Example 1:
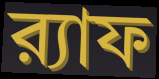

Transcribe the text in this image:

র‍্যাফ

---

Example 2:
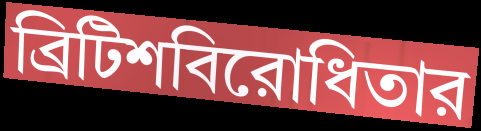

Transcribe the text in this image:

ব্রিটিশবিরোধিতার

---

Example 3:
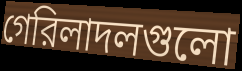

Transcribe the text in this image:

গেরিলাদলগুলো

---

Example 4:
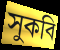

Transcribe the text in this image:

সুকবি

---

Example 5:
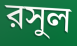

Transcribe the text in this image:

রসুল